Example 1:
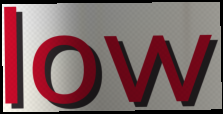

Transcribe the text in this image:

low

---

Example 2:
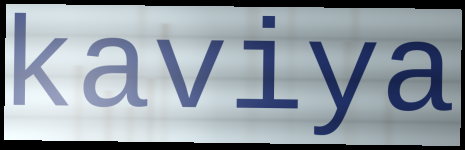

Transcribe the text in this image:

kaviya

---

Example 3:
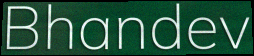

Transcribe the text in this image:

Bhandev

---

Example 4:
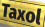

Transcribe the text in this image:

Taxol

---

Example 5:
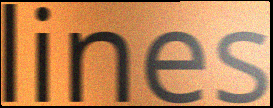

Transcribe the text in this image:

lines